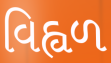
વિહ્વળ